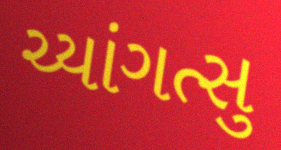
ચ્યાંગત્સુ